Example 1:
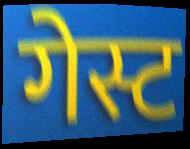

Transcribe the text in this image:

गेस्ट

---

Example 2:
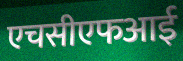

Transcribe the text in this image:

एचसीएफआई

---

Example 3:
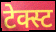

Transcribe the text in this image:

टेक्स्ट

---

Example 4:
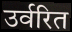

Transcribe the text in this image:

उर्वरित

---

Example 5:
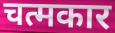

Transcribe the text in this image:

चत्मकार